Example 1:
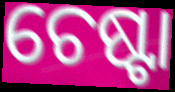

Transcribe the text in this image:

ଚେଷ୍ଟା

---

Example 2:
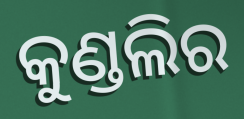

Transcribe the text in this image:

କୁଣ୍ଡଲିର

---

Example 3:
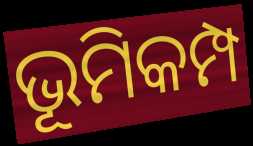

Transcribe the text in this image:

ଭୂମିକମ୍ପ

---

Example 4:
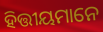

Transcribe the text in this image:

ହିତ୍ତୀୟମାନେ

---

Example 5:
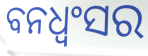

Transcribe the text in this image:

ବନଧ୍ଵଂସର